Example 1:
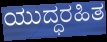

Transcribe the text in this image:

ಯುದ್ಧರಹಿತ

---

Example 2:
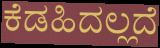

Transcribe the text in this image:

ಕೆಡಹಿದಲ್ಲದೆ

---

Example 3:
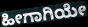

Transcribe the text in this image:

ಹೀಗಾಗಿಯೇ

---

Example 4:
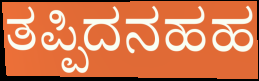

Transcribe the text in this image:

ತಪ್ಪಿದನಹಹ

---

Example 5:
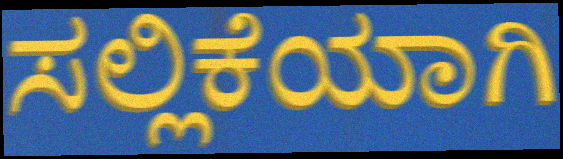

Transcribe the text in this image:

ಸಲ್ಲಿಕೆಯಾಗಿ